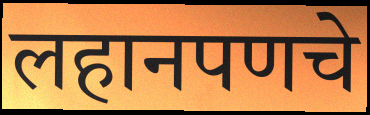
लहानपणचे